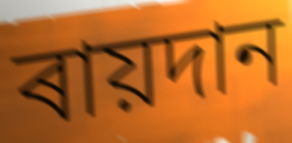
ৰায়দান